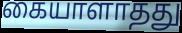
கையாளாதது